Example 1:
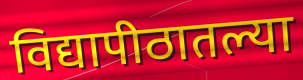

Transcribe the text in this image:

विद्यापीठातल्या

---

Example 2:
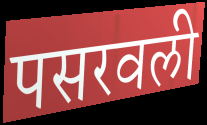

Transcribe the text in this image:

पसरवली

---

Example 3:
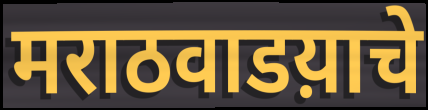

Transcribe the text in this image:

मराठवाडय़ाचे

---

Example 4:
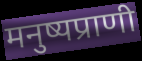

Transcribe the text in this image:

मनुष्यप्राणी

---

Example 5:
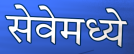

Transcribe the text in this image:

सेवेमध्ये